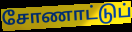
சோணாட்டுப்